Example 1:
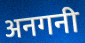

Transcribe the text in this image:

अनगनी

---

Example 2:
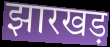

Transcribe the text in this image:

झारखड़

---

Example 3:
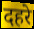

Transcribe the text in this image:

दहरे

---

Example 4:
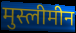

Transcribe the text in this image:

मुस्लीमीन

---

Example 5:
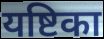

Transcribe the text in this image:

यष्टिका